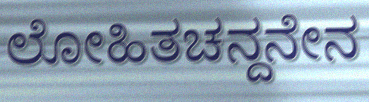
ಲೋಹಿತಚನ್ದನೇನ